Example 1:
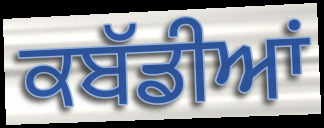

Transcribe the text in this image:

ਕਬੱਡੀਆਂ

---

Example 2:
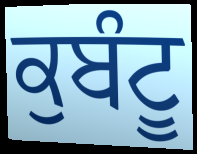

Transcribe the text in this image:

ਕੁਬੰਟੂ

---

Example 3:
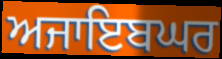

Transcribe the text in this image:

ਅਜਾਇਬਘਰ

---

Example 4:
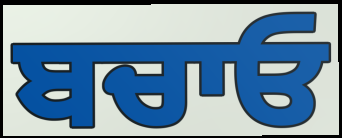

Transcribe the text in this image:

ਬਚਾਓ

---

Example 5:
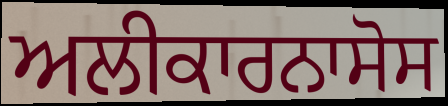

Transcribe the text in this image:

ਅਲੀਕਾਰਨਾਸੋਸ